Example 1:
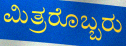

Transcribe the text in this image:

ಮಿತ್ರರೊಬ್ಬರು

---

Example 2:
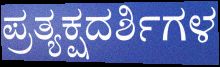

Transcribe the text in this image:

ಪ್ರತ್ಯಕ್ಷದರ್ಶಿಗಳ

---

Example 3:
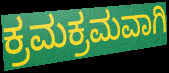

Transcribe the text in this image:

ಕ್ರಮಕ್ರಮವಾಗಿ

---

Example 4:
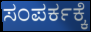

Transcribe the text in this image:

ಸಂಪರ್ಕಕ್ಕೆ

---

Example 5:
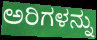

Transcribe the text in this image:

ಅರಿಗಳನ್ನು